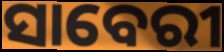
ସାବେରୀ